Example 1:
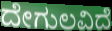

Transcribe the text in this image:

ದೇಗುಲವಿದೆ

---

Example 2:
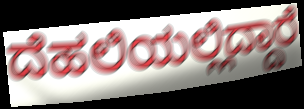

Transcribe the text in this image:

ದೆಹಲಿಯಲ್ಲಿದ್ದಾರೆ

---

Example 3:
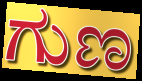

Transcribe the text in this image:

ಗುಣ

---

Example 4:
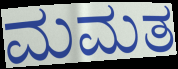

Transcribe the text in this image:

ಮಮತ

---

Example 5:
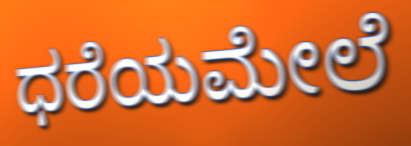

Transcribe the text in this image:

ಧರೆಯಮೇಲೆ